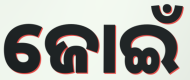
ଜୋଇଁ